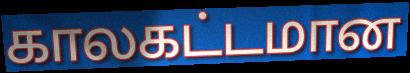
காலகட்டமான